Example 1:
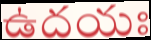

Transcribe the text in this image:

ఉదయః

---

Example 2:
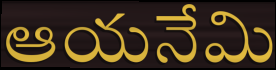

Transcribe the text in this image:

ఆయనేమి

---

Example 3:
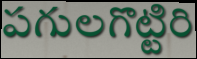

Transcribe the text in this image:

పగులగొట్టిరి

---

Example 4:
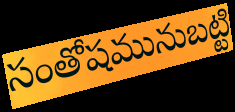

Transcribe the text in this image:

సంతోషమునుబట్టి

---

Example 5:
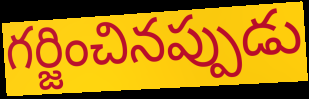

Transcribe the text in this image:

గర్జించినప్పుడు